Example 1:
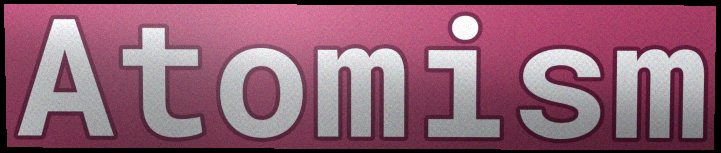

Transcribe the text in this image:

Atomism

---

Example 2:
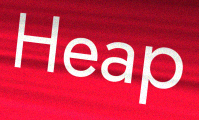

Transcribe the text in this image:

Heap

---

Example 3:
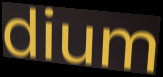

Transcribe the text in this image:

dium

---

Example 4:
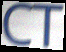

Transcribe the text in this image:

CT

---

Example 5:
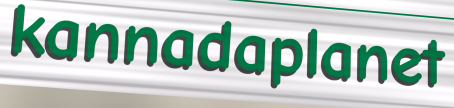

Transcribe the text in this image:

kannadaplanet